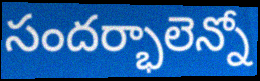
సందర్భాలెన్నో